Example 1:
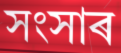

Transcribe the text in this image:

সংসাৰ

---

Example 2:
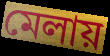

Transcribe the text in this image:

মেলায়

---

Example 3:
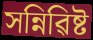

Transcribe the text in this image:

সন্নিৱিষ্ট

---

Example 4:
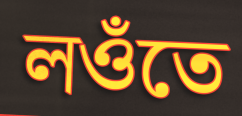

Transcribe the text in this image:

লওঁতে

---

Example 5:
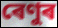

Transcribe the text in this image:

ৰেণুৰ